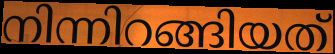
നിന്നിറങ്ങിയത്